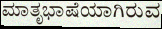
ಮಾತೃಭಾಷೆಯಾಗಿರುವ